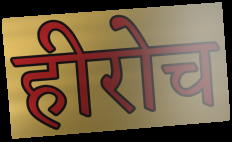
हीरोच